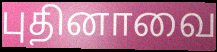
புதினாவை